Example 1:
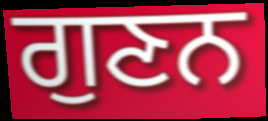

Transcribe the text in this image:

ਗੁਣਨ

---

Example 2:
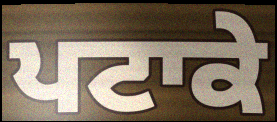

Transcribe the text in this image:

ਪਟਾਕੇ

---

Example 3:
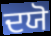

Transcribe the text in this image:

ਦਯੋ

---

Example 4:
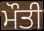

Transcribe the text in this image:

ਮੌਤੀ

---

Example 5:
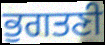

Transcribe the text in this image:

ਭੁਗਤਣੀ